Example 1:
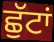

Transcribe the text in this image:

ਛੁੱਟਾਂ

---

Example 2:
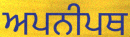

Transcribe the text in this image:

ਅਪਨੀਪਥ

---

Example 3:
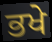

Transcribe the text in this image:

ਭਖੇ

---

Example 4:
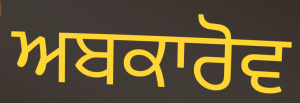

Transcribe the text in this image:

ਅਬਕਾਰੋਵ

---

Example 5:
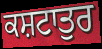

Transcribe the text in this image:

ਕਸ਼ਟਾਤੁਰ